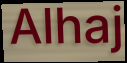
Alhaj